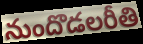
నుందొడలరీతి